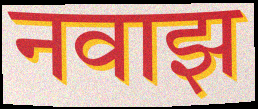
नवाझ